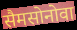
सैमसोनोवा